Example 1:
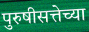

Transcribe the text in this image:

पुरुषीसत्तेच्या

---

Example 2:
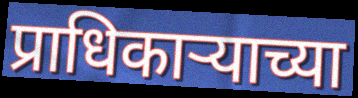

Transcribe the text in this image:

प्राधिकाऱ्याच्या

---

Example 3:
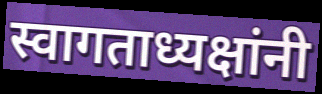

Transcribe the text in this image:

स्वागताध्यक्षांनी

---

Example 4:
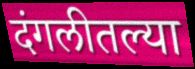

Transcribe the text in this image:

दंगलीतल्या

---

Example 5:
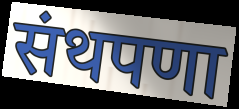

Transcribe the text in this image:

संथपणा